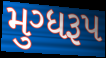
મુગ્ધરૂપ